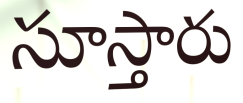
సూస్తారు